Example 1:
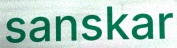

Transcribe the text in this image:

sanskar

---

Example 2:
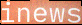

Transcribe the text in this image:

inews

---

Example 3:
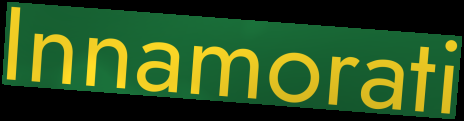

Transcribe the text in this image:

Innamorati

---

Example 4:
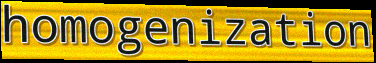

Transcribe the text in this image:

homogenization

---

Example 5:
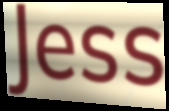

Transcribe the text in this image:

Jess